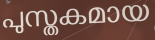
പുസ്തകമായ